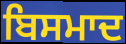
ਬਿਸਮਾਦ